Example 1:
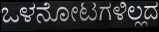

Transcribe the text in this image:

ಒಳನೋಟಗಳಿಲ್ಲದ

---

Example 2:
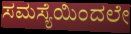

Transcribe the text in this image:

ಸಮಸ್ಯೆಯಿಂದಲೇ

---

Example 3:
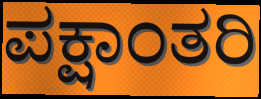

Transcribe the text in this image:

ಪಕ್ಷಾಂತರಿ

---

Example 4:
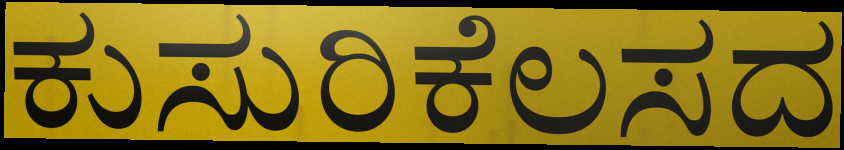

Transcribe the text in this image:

ಕುಸುರಿಕೆಲಸದ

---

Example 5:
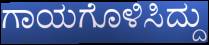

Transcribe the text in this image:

ಗಾಯಗೊಳಿಸಿದ್ದು